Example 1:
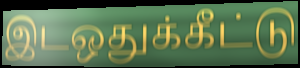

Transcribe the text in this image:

இடஒதுக்கீட்டு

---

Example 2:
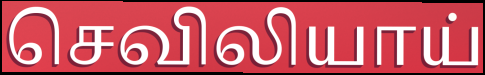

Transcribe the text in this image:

செவிலியாய்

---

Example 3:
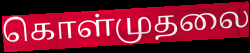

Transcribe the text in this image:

கொள்முதலை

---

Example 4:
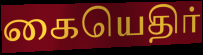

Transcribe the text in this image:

கையெதிர்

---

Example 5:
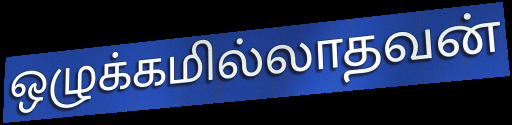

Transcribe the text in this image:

ஒழுக்கமில்லாதவன்